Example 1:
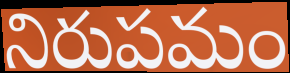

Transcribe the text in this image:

నిరుపమం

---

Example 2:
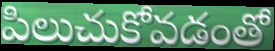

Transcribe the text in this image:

పిలుచుకోవడంతో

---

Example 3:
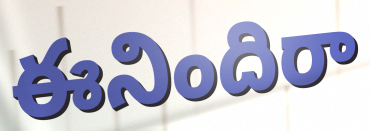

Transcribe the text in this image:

ఈనిందిరా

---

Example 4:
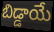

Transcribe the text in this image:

బిడ్డాయే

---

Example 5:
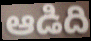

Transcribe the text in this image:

ఆడిది